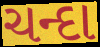
ચન્દા